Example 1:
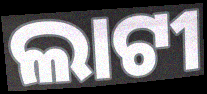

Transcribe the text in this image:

ଲାଟୀ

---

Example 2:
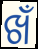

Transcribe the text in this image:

ଖଁ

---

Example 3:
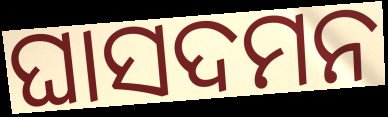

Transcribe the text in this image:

ଘାସଦମନ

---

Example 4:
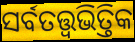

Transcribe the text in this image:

ସର୍ବତତ୍ତ୍ୱଭିତ୍ତିକ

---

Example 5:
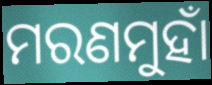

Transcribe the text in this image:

ମରଣମୁହାଁ